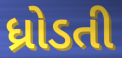
ધ્રોડતી